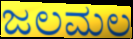
ಜಲಮಲ